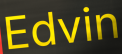
Edvin